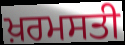
ਖ਼ਰਮਸਤੀ